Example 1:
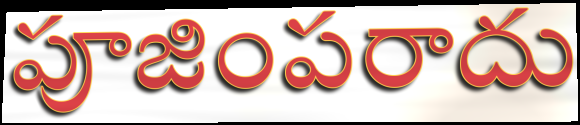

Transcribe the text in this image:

పూజింపరాదు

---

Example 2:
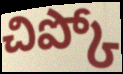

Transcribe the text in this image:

చిప్కో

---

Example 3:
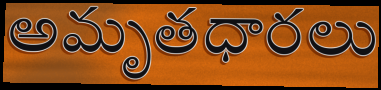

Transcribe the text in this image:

అమృతధారలు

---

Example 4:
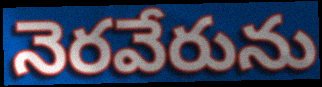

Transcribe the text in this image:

నెరవేరును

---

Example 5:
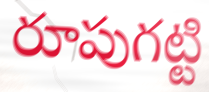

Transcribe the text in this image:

రూపుగట్టి